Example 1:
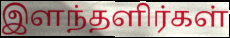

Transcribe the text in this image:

இளந்தளிர்கள்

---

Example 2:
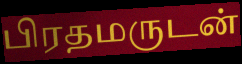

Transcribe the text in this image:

பிரதமருடன்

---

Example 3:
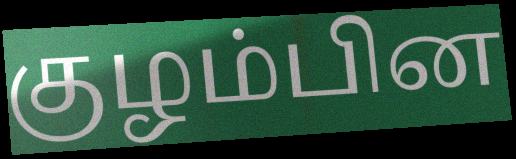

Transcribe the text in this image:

குழம்பின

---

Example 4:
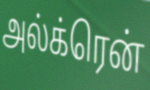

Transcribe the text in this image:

அல்க்ரென்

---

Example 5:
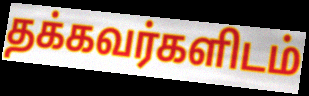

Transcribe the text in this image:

தக்கவர்களிடம்